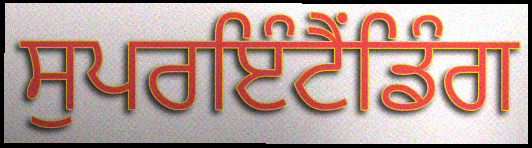
ਸੁਪਰਇੰਟੈਂਡਿੰਗ